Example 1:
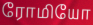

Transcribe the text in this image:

ரோமியோ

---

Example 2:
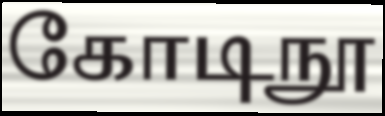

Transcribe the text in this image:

கோடிநூ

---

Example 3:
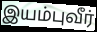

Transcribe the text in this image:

இயம்புவீர்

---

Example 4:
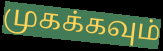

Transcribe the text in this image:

முகக்கவும்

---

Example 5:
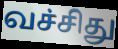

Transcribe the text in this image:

வச்சிது